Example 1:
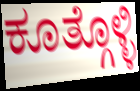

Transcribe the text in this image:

ಕೂತ್ಗೊಳ್ಳಿ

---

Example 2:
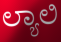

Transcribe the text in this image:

ಲ್ಯಾಲಿ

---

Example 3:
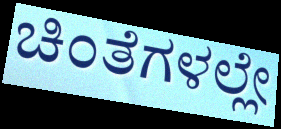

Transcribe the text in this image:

ಚಿಂತೆಗಳಲ್ಲೇ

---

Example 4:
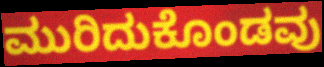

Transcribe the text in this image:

ಮುರಿದುಕೊಂಡವು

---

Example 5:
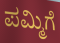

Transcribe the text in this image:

ಪಮ್ಮಿಗೆ